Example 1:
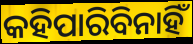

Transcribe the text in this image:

କହିପାରିବିନାହିଁ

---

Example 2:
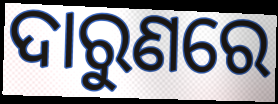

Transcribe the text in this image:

ଦାରୁଣରେ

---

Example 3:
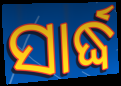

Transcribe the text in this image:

ସାର୍ଦ୍ଧ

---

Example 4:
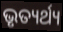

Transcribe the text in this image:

ଭୃତ୍ୟର୍ଥ୍ୟ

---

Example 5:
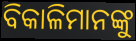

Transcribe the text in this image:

ବିକାଳିମାନଙ୍କୁ